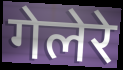
गेलेरे